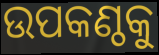
ଉପକଣ୍ଠକୁ